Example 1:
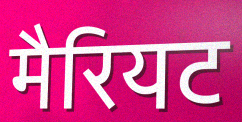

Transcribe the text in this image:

मैरियट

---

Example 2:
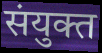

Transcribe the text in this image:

संयुक्‍त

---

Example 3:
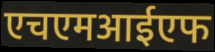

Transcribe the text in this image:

एचएमआईएफ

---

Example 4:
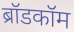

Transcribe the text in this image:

ब्रॉडकॉम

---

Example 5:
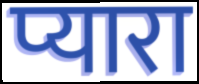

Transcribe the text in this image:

प्‍यारा